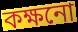
কক্ষনো